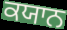
ਕਯਾਨ